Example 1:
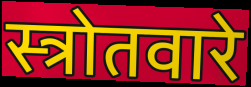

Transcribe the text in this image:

स्त्रोतवारे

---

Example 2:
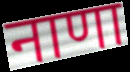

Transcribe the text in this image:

नाणा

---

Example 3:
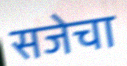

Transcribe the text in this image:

सजेचा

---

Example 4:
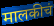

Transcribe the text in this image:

मालकीचं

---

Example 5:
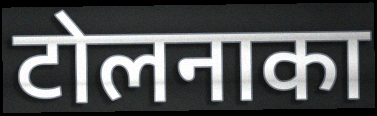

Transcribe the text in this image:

टोलनाका